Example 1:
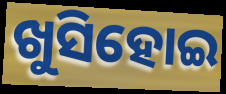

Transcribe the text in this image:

ଖୁସିହୋଇ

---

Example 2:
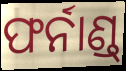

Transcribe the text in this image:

ଫର୍ନାଣ୍ଡ୍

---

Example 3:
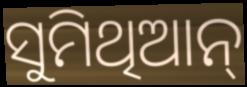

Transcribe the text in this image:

ସୁମିଥିଆନ୍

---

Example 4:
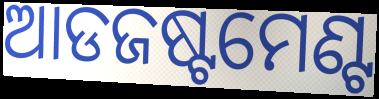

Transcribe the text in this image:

ଆଡଜଷ୍ଟମେଣ୍ଟ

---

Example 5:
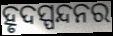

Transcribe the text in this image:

ହୃଦସ୍ପନ୍ଦନର